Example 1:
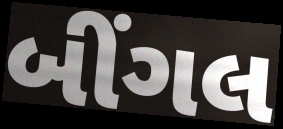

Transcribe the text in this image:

બીંગલ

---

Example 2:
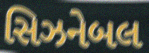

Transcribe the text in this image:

સિઝનેબલ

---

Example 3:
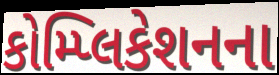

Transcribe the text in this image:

કોમ્પ્લિકેશનના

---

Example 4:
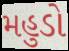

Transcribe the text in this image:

મહુડો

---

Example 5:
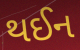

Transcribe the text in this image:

થઈન